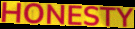
HONESTY